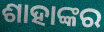
ଶାହାଙ୍କର